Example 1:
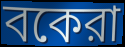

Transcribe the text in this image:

বকেরা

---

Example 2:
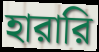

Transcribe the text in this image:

হারারি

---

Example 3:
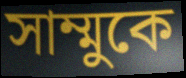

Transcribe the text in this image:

সাম্মুকে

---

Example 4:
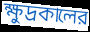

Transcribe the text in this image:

ক্ষুদ্রকালের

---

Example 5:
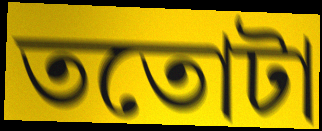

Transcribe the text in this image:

ততোটা